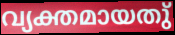
വ്യക്തമായതു്